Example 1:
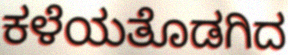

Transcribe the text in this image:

ಕಳೆಯತೊಡಗಿದ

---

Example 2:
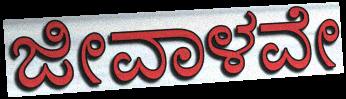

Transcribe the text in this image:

ಜೀವಾಳವೇ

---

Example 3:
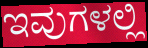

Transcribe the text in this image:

ಇವುಗಳಲ್ಲಿ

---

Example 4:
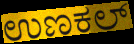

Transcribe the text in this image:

ಉಣಕಲ್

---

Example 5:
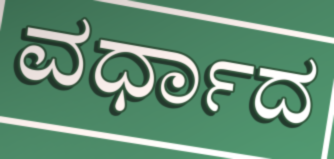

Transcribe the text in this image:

ವರ್ಧಾದ